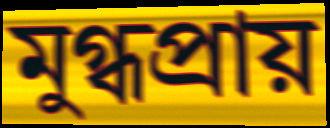
মুগ্ধপ্রায়